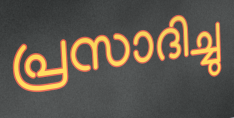
പ്രസാദിച്ചു